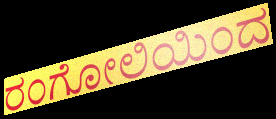
ರಂಗೋಲಿಯಿಂದ